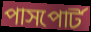
পাসপোর্ট